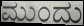
ಮುಂದು